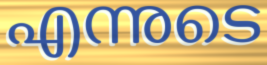
എന്നുടെ